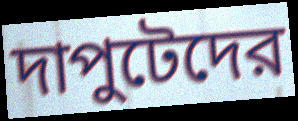
দাপুটেদের